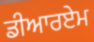
ਡੀਆਰਏਮ